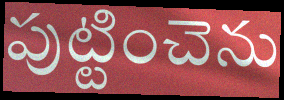
పుట్టించెను